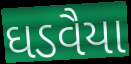
ઘડવૈયા